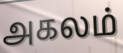
அகலம்